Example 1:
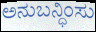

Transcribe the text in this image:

ಅನುಬನ್ಧಿಂಸು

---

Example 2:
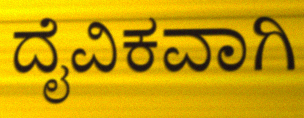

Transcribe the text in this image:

ದೈವಿಕವಾಗಿ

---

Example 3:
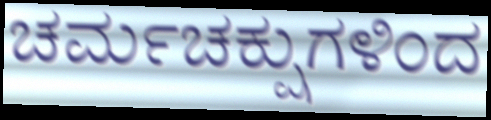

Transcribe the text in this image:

ಚರ್ಮಚಕ್ಷುಗಳಿಂದ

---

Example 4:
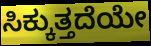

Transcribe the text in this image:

ಸಿಕ್ಕುತ್ತದೆಯೇ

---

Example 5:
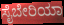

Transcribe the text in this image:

ಸೈಬೇರಿಯಾ